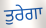
ਤੁਰੇਗਾ